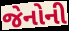
જેનોની